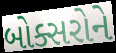
બોક્સરોને